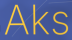
Aks